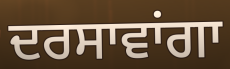
ਦਰਸਾਵਾਂਗਾ